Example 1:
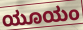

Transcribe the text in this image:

ಯೂಯಂ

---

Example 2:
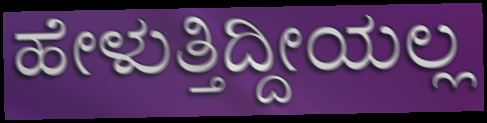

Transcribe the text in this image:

ಹೇಳುತ್ತಿದ್ದೀಯಲ್ಲ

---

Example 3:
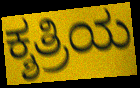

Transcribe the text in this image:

ಕ್ಶತ್ರಿಯ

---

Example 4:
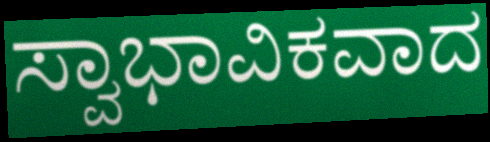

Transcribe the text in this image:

ಸ್ವಾಭಾವಿಕವಾದ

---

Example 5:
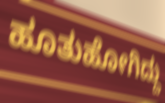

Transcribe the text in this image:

ಹೂತುಹೋಗಿದ್ದು